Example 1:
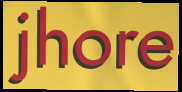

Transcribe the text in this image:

jhore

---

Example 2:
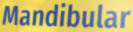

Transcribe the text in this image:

Mandibular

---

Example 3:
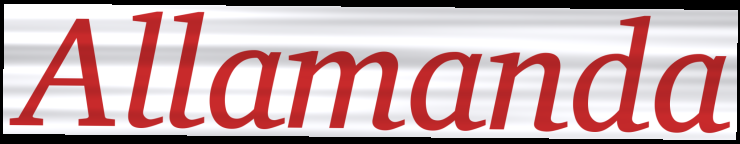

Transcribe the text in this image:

Allamanda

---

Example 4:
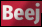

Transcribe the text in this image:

Beej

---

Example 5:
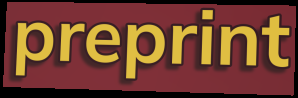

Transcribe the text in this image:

preprint